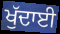
ਖੁੱਦਾਈ